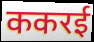
ककरई